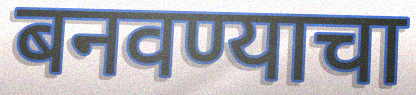
बनवण्याचा